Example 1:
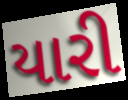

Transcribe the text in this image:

યારી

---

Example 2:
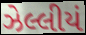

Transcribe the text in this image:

ઝેલ્લીયં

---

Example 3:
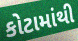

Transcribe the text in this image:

કોટામાંથી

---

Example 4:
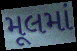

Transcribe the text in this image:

મૂલમાં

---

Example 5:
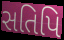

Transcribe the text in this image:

સતિપિ